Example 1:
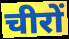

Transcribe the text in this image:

चीरों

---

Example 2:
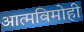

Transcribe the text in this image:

आत्मविमोही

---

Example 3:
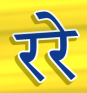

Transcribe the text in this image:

ररे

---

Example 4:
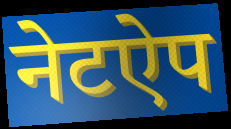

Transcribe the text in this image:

नेटऐप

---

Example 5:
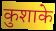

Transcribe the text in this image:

कुशाके